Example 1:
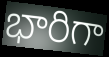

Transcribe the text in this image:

భారిగా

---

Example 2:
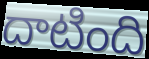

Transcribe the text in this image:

దాటింది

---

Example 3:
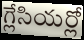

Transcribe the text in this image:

గ్లేసియర్లో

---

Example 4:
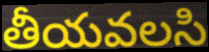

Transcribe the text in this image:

తీయవలసి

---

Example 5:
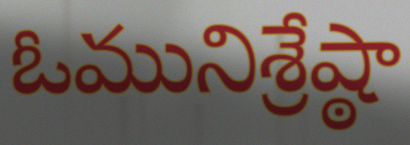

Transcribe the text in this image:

ఓమునిశ్రేష్ఠా